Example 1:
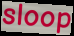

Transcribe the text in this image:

sloop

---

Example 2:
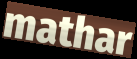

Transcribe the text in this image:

mathar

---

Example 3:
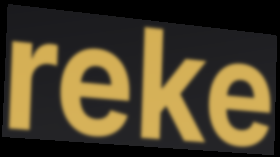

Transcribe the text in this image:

reke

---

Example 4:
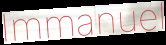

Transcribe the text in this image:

Immanuel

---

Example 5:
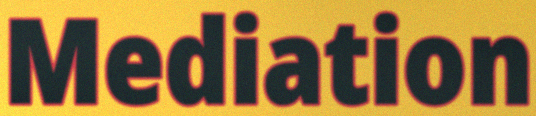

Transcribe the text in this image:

Mediation